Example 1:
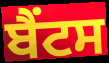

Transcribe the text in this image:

ਬੈਂਟਸ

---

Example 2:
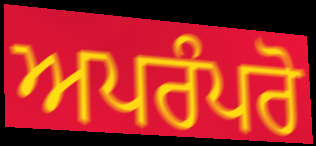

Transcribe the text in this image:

ਅਪਰੰਪਰੋ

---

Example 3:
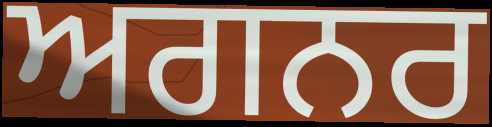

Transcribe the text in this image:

ਅਗਨਰ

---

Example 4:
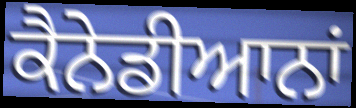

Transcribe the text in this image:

ਕੈਨੇਡੀਆਨਾਂ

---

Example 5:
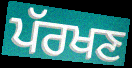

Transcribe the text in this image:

ਪੱਰਖਣ